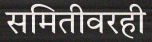
समितीवरही